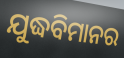
ଯୁଦ୍ଧବିମାନର